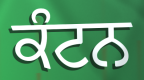
ਕੰਟਨ